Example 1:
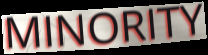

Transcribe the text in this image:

MINORITY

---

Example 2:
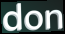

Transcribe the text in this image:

don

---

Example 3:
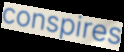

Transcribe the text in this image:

conspires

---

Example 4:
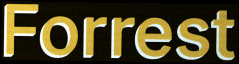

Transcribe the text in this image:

Forrest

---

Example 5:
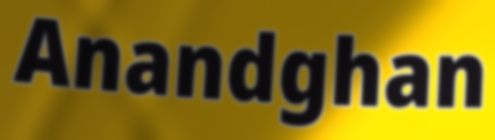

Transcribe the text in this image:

Anandghan